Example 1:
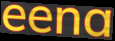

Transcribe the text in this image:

eena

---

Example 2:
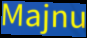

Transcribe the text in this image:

Majnu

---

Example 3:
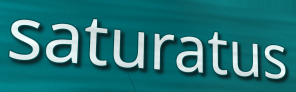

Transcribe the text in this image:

saturatus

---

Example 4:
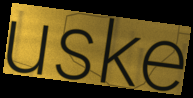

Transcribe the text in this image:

uske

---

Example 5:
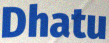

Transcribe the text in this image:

Dhatu